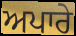
ਅਪਾਰੇ